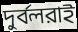
দুর্বলরাই